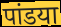
पांडया